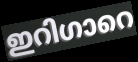
ഇറിഗാറെ